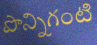
పొన్నిగంటి